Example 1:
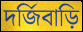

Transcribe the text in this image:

দর্জিবাড়ি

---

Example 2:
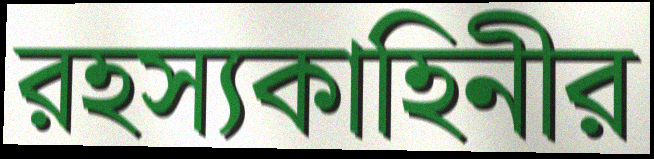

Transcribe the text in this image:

রহস্যকাহিনীর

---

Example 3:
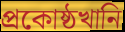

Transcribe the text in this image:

প্রকোষ্ঠখানি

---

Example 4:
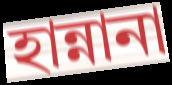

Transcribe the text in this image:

হান্নানা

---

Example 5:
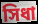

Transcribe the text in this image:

সিধা